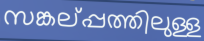
സങ്കല്പ്പത്തിലുള്ള